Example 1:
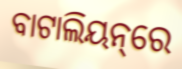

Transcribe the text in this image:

ବାଟାଲିୟନ୍‌ରେ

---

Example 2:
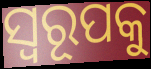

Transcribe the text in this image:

ସ୍ବରୂପକୁ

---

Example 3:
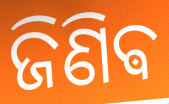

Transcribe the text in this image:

ଜିଣିଵ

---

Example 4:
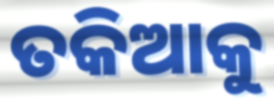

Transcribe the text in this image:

ତକିଆକୁ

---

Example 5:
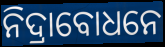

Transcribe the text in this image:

ନିଦ୍ରାବୋଧନେ